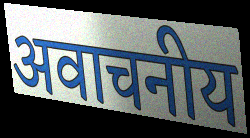
अवाचनीय